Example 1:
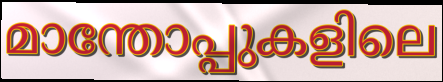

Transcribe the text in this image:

മാന്തോപ്പുകളിലെ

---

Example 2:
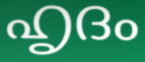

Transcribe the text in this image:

ഹൃദം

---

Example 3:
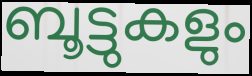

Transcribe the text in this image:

ബൂട്ടുകളും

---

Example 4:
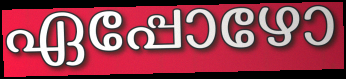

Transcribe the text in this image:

ഏപ്പോഴോ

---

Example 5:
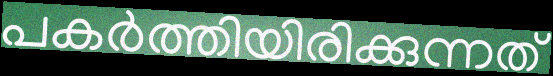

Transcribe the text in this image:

പകർത്തിയിരിക്കുന്നത്